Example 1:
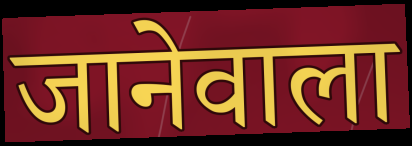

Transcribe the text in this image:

जानेवाला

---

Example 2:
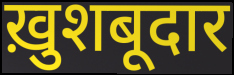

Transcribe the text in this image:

ख़ुशबूदार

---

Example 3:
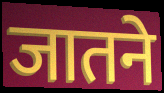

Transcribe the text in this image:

जातने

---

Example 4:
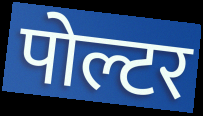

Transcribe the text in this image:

पोल्टर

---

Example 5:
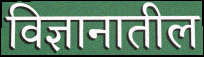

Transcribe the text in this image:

विज्ञानातील